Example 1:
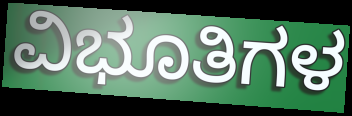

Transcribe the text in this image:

ವಿಭೂತಿಗಳ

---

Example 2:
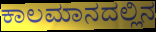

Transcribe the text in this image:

ಕಾಲಮಾನದಲ್ಲಿನ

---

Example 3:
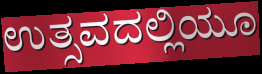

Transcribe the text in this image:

ಉತ್ಸವದಲ್ಲಿಯೂ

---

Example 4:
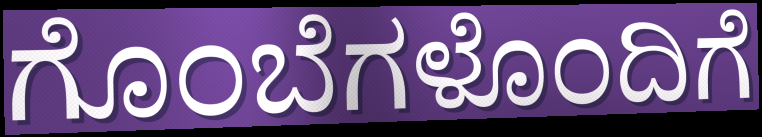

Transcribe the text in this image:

ಗೊಂಬೆಗಳೊಂದಿಗೆ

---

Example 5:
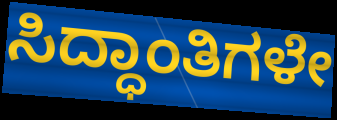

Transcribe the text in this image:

ಸಿದ್ಧಾಂತಿಗಳೇ